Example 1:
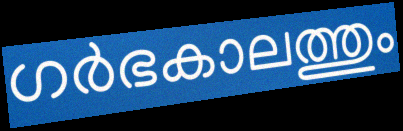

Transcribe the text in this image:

ഗർഭകാലത്തും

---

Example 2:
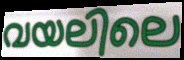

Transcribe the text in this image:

വയലിലെ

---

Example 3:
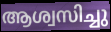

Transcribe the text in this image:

ആശ്വസിച്ചു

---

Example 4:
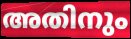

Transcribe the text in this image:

അതിനും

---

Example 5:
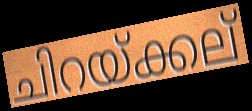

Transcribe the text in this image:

ചിറയ്ക്കല്